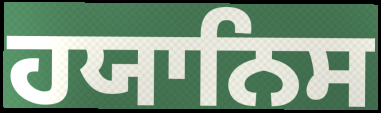
ਹਯਾਨਿਸ